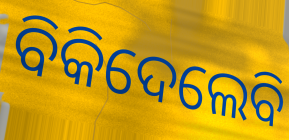
ବିକିଦେଲେବି